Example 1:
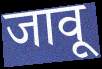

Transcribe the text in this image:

जावू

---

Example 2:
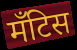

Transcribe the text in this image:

मँटिस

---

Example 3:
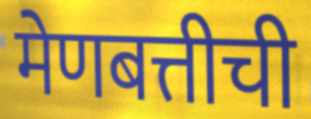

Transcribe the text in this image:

मेणबत्तीची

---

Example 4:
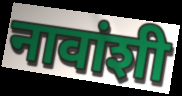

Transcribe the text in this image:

नावांशी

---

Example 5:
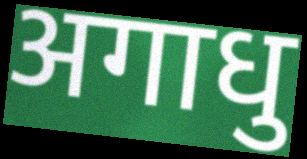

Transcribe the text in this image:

अगाधु